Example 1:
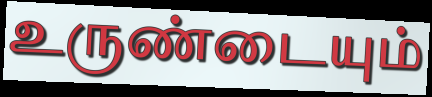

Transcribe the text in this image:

உருண்டையும்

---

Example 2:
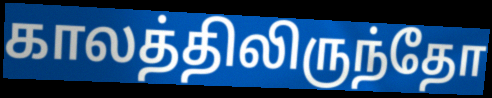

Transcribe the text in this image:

காலத்திலிருந்தோ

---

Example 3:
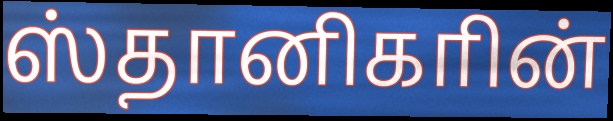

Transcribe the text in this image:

ஸ்தானிகரின்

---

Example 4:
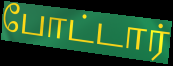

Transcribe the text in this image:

போட்டார்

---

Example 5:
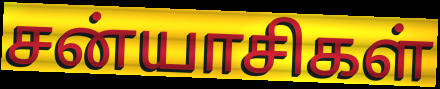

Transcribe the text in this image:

சன்யாசிகள்